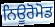
ਨਿਊਰੋਮੋਡ